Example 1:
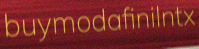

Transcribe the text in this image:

buymodafinilntx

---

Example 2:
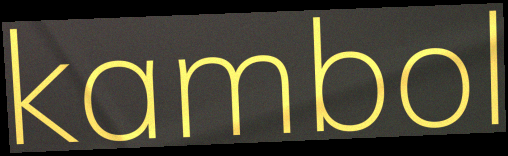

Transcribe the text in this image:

kambol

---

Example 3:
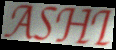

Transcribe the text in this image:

ASHI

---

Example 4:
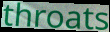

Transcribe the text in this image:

throats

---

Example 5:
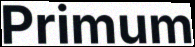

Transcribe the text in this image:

Primum